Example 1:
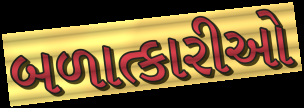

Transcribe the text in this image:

બળાત્કારીઓ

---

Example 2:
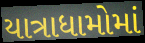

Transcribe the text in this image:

યાત્રાધામોમાં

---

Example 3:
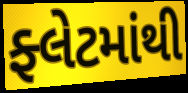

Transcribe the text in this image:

ફ્લેટમાંથી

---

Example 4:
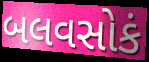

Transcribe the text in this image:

બલવસોકં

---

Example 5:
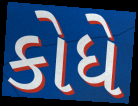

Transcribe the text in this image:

કોધે